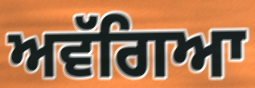
ਅਵੱਗਿਆ